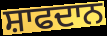
ਸ਼ਾਫਦਾਨ